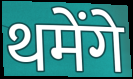
थमेंगे